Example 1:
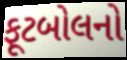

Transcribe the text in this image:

ફૂટબોલનો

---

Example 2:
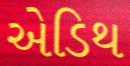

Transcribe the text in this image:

એડિથ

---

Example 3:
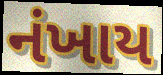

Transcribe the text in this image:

નંખાય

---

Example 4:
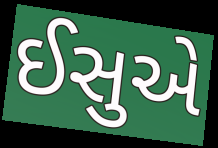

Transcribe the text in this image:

ઈસુએ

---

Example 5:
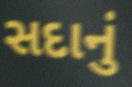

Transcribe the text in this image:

સદાનું